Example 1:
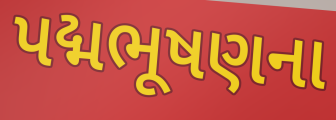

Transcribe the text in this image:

પદ્મભૂષણના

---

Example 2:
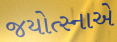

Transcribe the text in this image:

જયોત્સ્નાએ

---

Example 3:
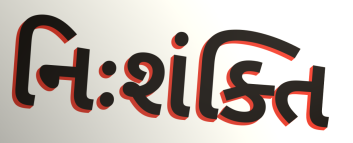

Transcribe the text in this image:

નિઃશંક્તિ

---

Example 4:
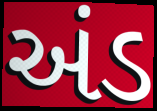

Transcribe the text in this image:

અંડ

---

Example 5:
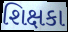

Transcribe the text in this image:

શિક્ષકા